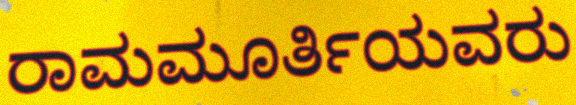
ರಾಮಮೂರ್ತಿಯವರು